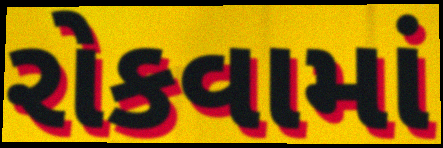
રોકવામાં